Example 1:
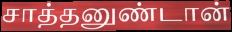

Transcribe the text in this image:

சாத்தனுண்டான்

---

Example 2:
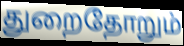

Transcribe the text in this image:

துறைதோறும்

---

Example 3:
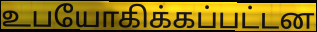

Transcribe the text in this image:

உபயோகிக்கப்பட்டன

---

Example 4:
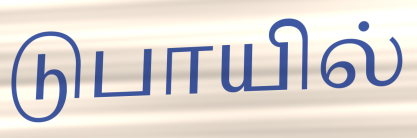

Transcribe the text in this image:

டுபாயில்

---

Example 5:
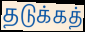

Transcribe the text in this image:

தடுக்கத்